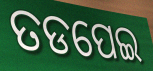
ତଡପେଇ